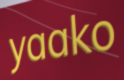
yaako